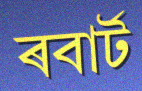
ৰবাৰ্ট